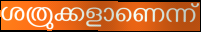
ശത്രുക്കളാണെന്ന്